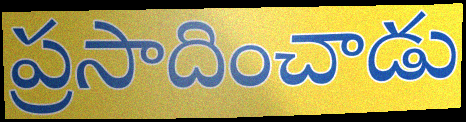
ప్రసాదించాడు